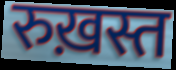
रुख़स्त